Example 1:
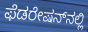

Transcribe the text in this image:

ಫೆಡರೇಷನ್‌ನಲ್ಲಿ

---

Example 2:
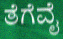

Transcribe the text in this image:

ತೆಗೆವೈ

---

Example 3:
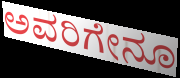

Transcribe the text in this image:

ಅವರಿಗೇನೂ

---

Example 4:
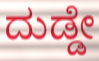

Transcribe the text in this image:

ದುಡ್ಡೇ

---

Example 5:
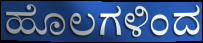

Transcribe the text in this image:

ಹೊಲಗಳಿಂದ